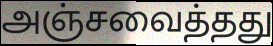
அஞ்சவைத்தது